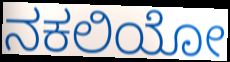
ನಕಲಿಯೋ